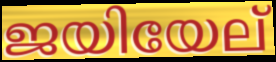
ജയിയേല്